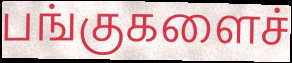
பங்குகளைச்